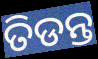
ତିଡନ୍ତ